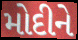
મોદીને